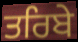
ਤਰਿਬੇ